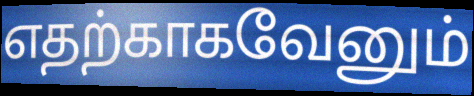
எதற்காகவேனும்